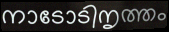
നാടോടിനൃത്തം